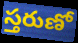
స్తరుణో